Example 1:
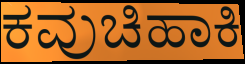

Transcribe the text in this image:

ಕವುಚಿಹಾಕಿ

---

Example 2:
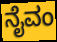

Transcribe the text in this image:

ನೈವಂ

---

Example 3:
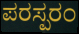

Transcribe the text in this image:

ಪರಸ್ಪರಂ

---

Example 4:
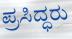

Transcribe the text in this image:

ಪ್ರಸಿದ್ಧರು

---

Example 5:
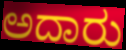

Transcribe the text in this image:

ಅದಾರು